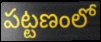
పట్టణంలో